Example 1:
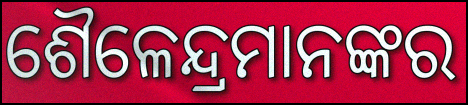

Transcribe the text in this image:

ଶୈଳେନ୍ଦ୍ରମାନଙ୍କର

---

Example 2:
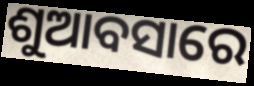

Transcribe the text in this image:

ଶୁଆବସାରେ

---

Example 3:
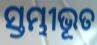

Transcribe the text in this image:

ସ୍ତମ୍ଭୀଭୂତ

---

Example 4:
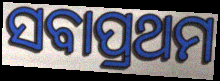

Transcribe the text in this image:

ସବାପ୍ରଥମ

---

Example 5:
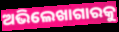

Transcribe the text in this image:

ଅଭିଲେଖାଗାରକୁ